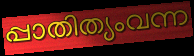
പ്പാതിത്യംവന്ന